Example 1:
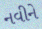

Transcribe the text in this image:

નવીને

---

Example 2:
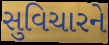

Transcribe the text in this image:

સુવિચારને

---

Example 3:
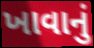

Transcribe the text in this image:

ખાવાનું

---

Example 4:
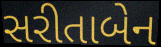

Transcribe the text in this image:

સરીતાબેન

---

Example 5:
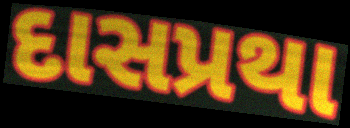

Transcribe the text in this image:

દાસપ્રથા